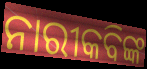
ନାରୀକବିଙ୍କ